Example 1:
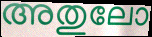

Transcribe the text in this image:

അതുലോ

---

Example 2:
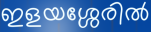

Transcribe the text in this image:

ഇളയശ്ശേരിൽ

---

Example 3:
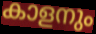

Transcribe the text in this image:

കാളനും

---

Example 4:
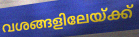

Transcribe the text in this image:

വശങ്ങളിലേയ്ക്ക്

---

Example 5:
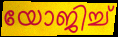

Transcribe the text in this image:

യോജിച്ച്